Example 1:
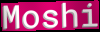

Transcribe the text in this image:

Moshi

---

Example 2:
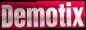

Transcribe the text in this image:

Demotix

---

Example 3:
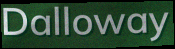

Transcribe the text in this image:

Dalloway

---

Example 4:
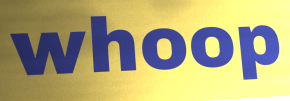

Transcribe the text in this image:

whoop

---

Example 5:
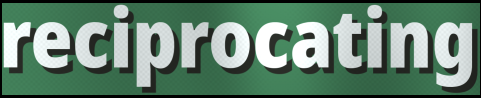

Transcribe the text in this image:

reciprocating